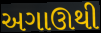
અગાઊથી